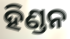
ହିଣ୍ଡନ